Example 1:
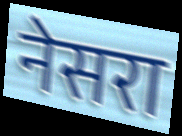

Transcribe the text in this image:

नेसरा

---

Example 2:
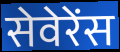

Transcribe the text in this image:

सेवेरेंस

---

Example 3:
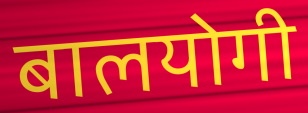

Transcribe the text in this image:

बालयोगी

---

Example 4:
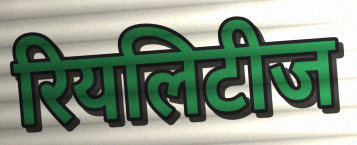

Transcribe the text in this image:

रियलिटीज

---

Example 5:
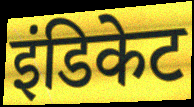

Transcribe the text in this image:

इंडिकेट